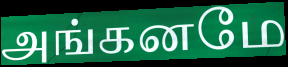
அங்கனமே